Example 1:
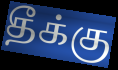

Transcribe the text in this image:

தீக்கு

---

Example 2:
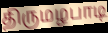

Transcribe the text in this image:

திருமழபாடி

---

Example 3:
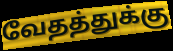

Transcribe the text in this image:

வேதத்துக்கு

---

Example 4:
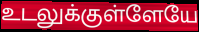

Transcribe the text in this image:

உடலுக்குள்ளேயே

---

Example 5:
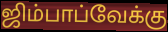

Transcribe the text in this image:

ஜிம்பாப்வேக்கு